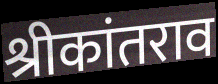
श्रीकांतराव